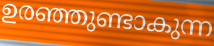
ഉരഞ്ഞുണ്ടാകുന്ന